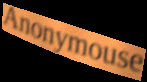
Anonymouse